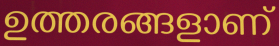
ഉത്തരങ്ങളാണ്